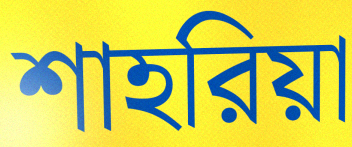
শাহরিয়া